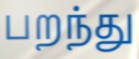
பறந்து